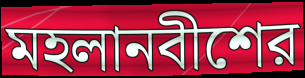
মহলানবীশের